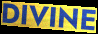
DIVINE